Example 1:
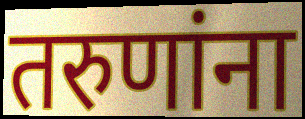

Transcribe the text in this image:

तरुणांना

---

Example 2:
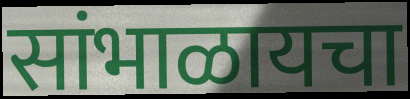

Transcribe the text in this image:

सांभाळायचा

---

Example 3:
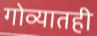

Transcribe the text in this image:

गोव्यातही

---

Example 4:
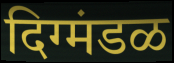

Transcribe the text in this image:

दिग्मंडळ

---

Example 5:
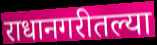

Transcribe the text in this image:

राधानगरीतल्या